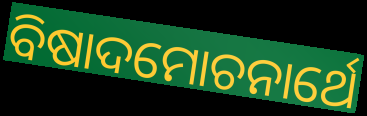
ବିଷାଦମୋଚନାର୍ଥେ